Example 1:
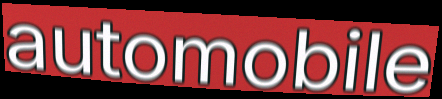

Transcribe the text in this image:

automobile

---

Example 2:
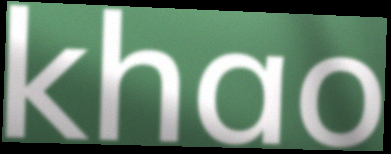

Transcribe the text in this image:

khao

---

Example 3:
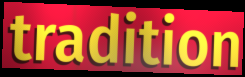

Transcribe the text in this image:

tradition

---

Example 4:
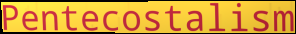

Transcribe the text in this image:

Pentecostalism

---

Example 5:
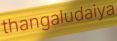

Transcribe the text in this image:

thangaludaiya